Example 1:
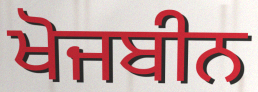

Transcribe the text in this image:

ਖੋਜਬੀਨ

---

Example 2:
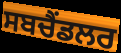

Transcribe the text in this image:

ਸਬਚੈਂਡਲਰ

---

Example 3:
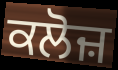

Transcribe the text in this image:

ਕਲੋਜ਼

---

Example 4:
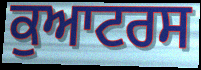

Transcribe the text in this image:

ਕੁਆਟਰਸ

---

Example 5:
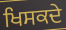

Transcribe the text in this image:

ਖਿਸਕਦੇ